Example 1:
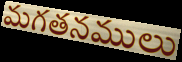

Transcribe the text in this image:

మగతనములు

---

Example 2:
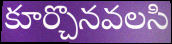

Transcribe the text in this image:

కూర్చొనవలసి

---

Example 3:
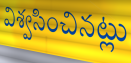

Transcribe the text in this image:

విశ్వసించినట్లు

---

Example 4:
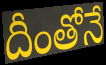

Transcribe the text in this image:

దీంతోనే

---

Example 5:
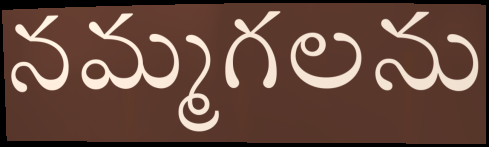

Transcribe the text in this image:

నమ్మగలను